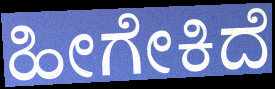
ಹೀಗೇಕಿದೆ